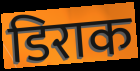
डिराक